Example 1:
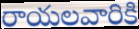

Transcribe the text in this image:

రాయలవారికి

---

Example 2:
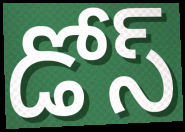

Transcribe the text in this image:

డోస్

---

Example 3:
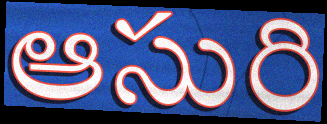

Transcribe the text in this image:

ఆసురి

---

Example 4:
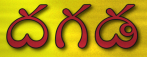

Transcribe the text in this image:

దగడ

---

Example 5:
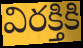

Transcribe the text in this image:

విరక్తికి